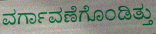
ವರ್ಗಾವಣೆಗೊಂಡಿತ್ತು